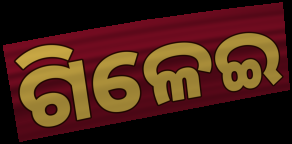
ଗିଳେଇ